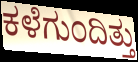
ಕಳೆಗುಂದಿತ್ತು